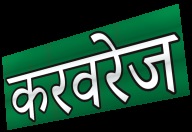
करवरेज